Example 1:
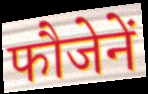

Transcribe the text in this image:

फौजेनें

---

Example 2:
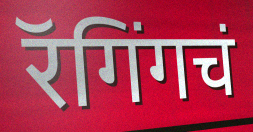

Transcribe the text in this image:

रॅगिंगचं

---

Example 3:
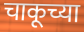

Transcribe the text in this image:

चाकूच्या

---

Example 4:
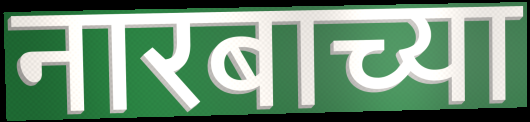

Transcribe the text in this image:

नारबाच्या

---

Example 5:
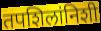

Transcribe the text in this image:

तपशिलांनिशी